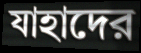
যাহাদের